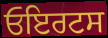
ਓਇਰਟਸ